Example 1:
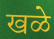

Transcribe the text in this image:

खळे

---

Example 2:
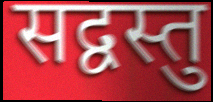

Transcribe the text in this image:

सद्वस्तु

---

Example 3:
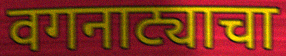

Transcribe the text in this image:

वगनाट्याचा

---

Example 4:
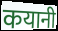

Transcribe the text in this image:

कयानी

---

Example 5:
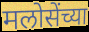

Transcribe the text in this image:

मलोसेंच्या